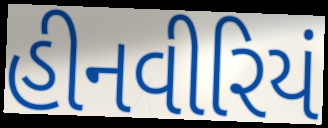
હીનવીરિયં